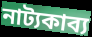
নাট্যকাব্য